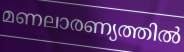
മണലാരണ്യത്തിൽ